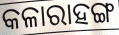
କଳାରାହଙ୍ଗ